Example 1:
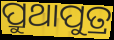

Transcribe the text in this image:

ପ୍ରୁଥାପୁତ୍ର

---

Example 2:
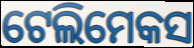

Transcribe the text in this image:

ଟେଲିମେକସ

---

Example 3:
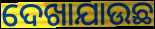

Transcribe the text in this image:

ଦେଖାଯାଉଛ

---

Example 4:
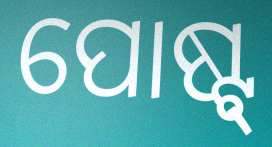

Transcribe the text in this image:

ପୋଷ୍ଟ୍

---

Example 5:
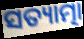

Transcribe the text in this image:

ସତ୍ୟାତ୍ମା